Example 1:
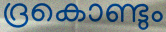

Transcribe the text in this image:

ദ്രകൊണ്ടും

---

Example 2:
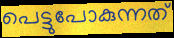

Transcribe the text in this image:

പെട്ടുപോകുന്നത്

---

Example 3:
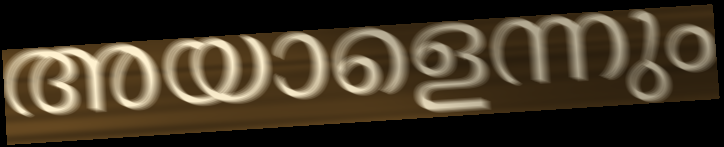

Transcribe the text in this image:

അയാളെന്നും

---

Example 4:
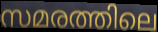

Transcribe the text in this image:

സമരത്തിലെ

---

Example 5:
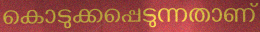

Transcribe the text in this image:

കൊടുക്കപ്പെടുന്നതാണ്